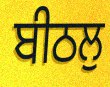
ਬੀਠਲੁ